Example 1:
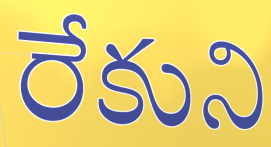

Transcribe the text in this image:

రేకుని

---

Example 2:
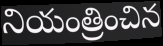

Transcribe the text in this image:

నియంత్రించిన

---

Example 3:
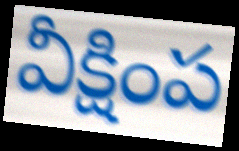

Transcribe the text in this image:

వీక్షింప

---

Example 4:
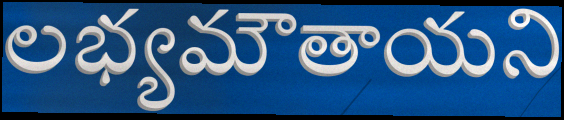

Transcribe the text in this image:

లభ్యమౌతాయని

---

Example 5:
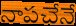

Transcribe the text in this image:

నాపచేనే